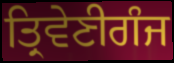
ਤ੍ਰਿਵੇਣੀਗੰਜ